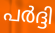
പർദ്ദി